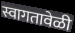
स्वागतावेळी